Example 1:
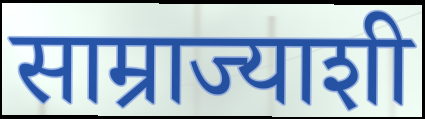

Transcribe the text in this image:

साम्राज्याशी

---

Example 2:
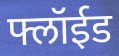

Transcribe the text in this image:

फ्लॉईड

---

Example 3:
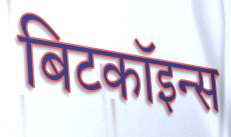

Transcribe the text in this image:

बिटकॉइन्स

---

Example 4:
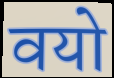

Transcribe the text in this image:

वयो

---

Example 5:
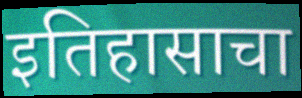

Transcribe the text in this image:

इतिहासाचा